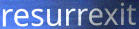
resurrexit